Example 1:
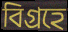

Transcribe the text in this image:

বিগ্রহে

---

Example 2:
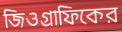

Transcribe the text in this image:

জিওগ্রাফিকের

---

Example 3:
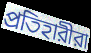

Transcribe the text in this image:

প্রতিহারীরা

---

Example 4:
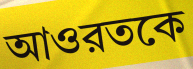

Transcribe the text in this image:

আওরতকে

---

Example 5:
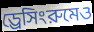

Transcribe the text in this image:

ড্রেসিংরুমেও